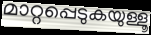
മാറ്റപ്പെടുകയുള്ളൂ